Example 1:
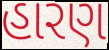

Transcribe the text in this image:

હારણ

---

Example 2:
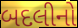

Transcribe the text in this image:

બદલીનો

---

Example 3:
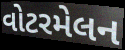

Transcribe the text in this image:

વોટરમેલન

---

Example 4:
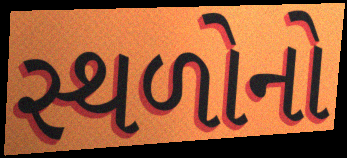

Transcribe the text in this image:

સ્થળોનો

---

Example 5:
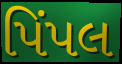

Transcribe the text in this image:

પિંપલ